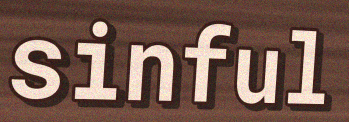
sinful